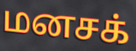
மனசக்